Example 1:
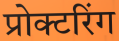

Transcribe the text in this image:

प्रोक्टरिंग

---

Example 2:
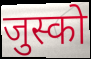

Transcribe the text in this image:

जुस्को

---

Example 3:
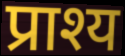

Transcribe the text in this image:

प्राश्य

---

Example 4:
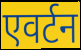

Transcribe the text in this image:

एवर्टन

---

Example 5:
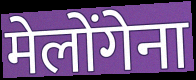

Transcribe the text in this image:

मेलोंगेना